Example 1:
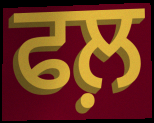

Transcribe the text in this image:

ਫਲ਼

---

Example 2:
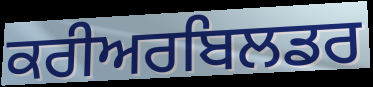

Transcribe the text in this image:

ਕਰੀਅਰਬਿਲਡਰ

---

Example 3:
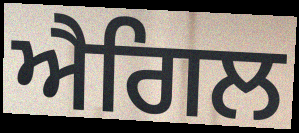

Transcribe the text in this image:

ਐਗਿਲ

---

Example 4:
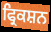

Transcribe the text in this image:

ਫ੍ਰਿਕਸ਼ਨ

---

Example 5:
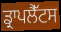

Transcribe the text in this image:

ਡ੍ਰਾਪਲੈੱਟਸ